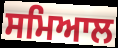
ਸਮਿਆਲ